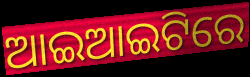
ଆଇଆଇଟିରେ